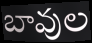
బావుల